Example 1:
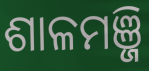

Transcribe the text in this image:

ଶାଳମଞ୍ଜି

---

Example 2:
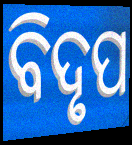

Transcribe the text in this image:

ବିଦୃପ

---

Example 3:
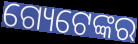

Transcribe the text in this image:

ଗ୍ୟେଟେଙ୍କର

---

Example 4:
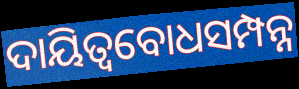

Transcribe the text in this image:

ଦାୟିତ୍ୱବୋଧସମ୍ପନ୍ନ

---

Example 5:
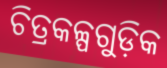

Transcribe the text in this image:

ଚିତ୍ରକଳ୍ପଗୁଡ଼ିକ